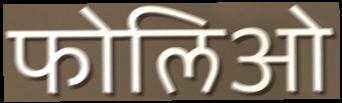
फोलिओ